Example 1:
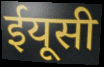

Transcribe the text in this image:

ईयूसी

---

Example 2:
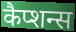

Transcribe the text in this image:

कैप्शन्स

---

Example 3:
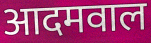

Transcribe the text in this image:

आदमवाल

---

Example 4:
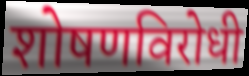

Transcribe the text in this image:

शोषणविरोधी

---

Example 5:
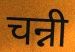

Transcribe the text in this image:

चन्नी